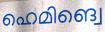
ഹെമിങ്വെ